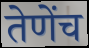
तेणेंच